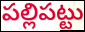
పల్లిపట్టు